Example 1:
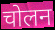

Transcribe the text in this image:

चोलन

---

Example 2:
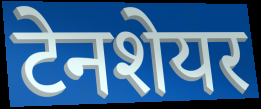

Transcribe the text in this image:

टेनशेयर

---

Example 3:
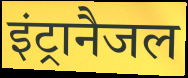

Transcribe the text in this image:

इंट्रानैजल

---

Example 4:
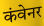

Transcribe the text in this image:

कंवेनर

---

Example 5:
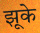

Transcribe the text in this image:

झूके